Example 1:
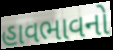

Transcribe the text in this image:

હાવભાવનો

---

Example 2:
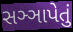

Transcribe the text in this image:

સઞ્ઞાપેતું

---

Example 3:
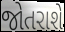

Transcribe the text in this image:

જોતરાશે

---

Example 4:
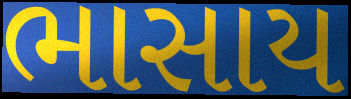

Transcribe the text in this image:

ભાસાય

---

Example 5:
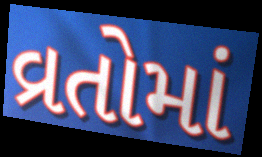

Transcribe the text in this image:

વ્રતોમાં